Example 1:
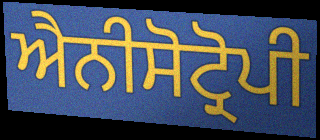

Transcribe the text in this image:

ਐਨੀਸੋਟ੍ਰੋਪੀ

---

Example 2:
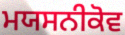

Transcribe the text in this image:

ਮਯਸਨੀਕੋਵ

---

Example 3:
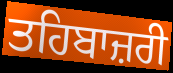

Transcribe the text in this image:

ਤਹਿਬਾਜ਼ਰੀ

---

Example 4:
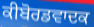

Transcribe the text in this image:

ਕੀਬੋਰਡਵਾਦਕ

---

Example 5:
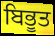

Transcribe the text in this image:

ਬਿਭੂਤ